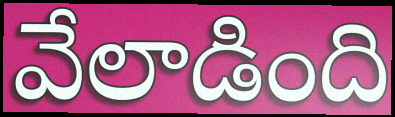
వేలాడింది